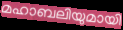
മഹാബലിയുമായി